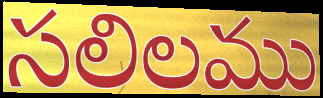
సలిలము